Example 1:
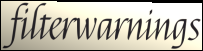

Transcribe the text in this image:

filterwarnings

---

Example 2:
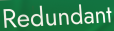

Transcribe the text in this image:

Redundant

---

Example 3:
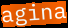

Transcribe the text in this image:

agina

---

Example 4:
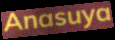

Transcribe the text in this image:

Anasuya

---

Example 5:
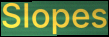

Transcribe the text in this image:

Slopes